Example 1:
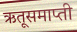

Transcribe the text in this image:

ऋतूसमाप्ती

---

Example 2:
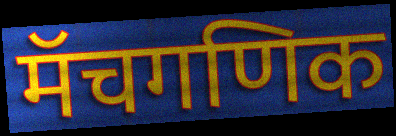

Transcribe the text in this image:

मॅचगणिक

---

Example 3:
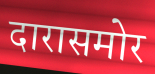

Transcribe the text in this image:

दारासमोर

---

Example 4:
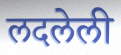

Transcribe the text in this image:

लदलेली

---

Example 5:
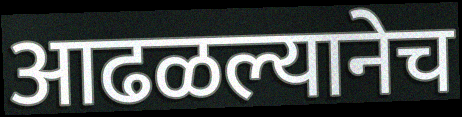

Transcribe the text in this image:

आढळल्यानेच